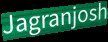
Jagranjosh